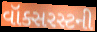
વૉક્સરસ્ટની